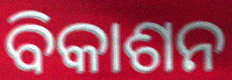
ବିକାଶନ